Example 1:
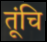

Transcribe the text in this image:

तूंचि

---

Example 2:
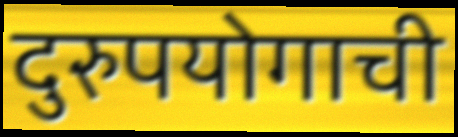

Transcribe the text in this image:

दुरुपयोगाची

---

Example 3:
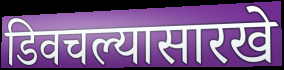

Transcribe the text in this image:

डिवचल्यासारखे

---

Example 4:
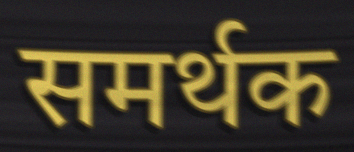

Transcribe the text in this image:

समर्थक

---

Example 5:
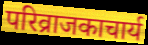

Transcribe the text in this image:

परिव्राजकाचार्य